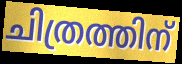
ചിത്രത്തിന്